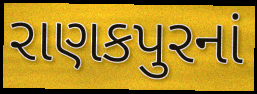
રાણકપુરનાં